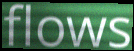
flows